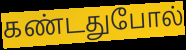
கண்டதுபோல்